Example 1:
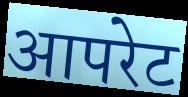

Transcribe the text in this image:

आपरेट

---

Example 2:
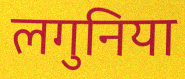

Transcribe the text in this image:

लगुनिया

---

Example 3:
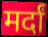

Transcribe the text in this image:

मर्दां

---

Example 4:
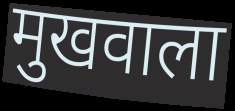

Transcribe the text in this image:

मुखवाला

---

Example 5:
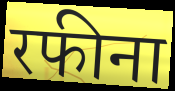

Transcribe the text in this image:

रफीना